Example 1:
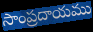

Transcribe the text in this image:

సాంప్రదాయము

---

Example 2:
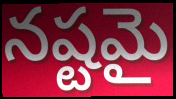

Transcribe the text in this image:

నష్టమై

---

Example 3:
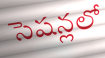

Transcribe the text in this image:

సెషన్లలో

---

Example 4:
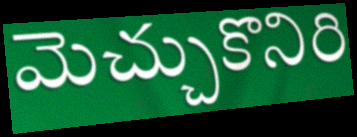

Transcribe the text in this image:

మెచ్చుకొనిరి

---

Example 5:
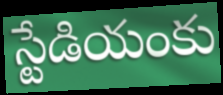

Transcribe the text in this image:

స్టేడియంకు